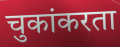
चुकांकरता